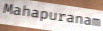
Mahapuranam